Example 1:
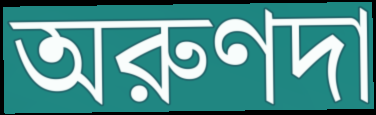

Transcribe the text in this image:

অরুণদা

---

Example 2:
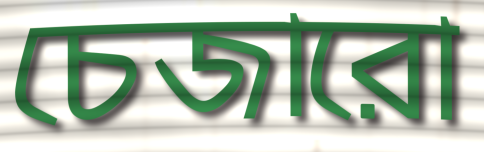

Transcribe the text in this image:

চেজারো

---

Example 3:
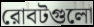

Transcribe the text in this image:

রোবটগুলো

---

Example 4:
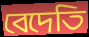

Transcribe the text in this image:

বেদেতি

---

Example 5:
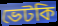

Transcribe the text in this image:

ভেটকি